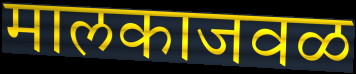
मालकाजवळ